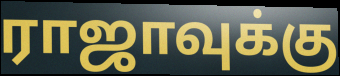
ராஜாவுக்கு